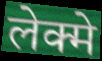
लेक्मे